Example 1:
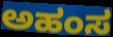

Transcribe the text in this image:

ಅಹಂಸ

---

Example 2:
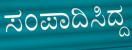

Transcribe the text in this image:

ಸಂಪಾದಿಸಿದ್ದ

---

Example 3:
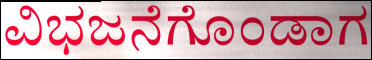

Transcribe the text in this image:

ವಿಭಜನೆಗೊಂಡಾಗ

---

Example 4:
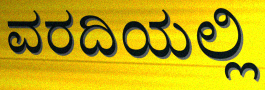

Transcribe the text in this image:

ವರದಿಯಲ್ಲಿ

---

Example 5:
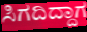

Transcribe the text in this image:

ಸಿಗದಿದ್ದಾಗ